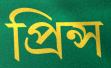
প্রিন্স